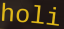
holi